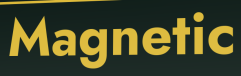
Magnetic